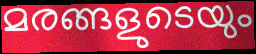
മരങ്ങളുടെയും